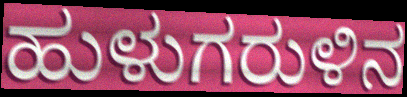
ಹುಳುಗರುಳಿನ